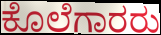
ಕೊಲೆಗಾರರು